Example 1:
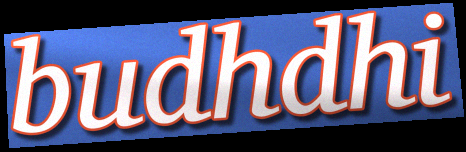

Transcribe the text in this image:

budhdhi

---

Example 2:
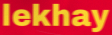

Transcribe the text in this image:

lekhay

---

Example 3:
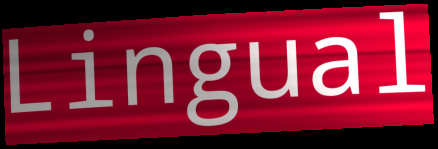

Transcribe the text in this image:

Lingual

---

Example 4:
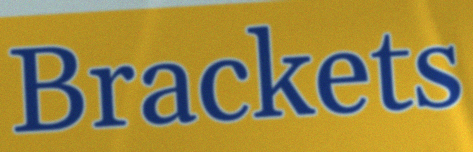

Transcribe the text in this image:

Brackets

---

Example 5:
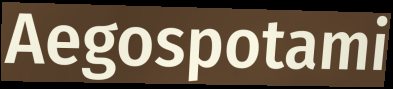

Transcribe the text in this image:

Aegospotami